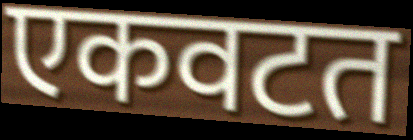
एकवटत